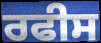
ਰਫੀਸ